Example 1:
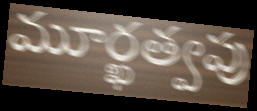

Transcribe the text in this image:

మూర్ఖత్వపు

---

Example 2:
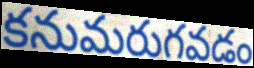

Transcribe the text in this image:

కనుమరుగవడం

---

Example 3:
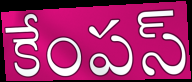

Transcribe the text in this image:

కేంపస్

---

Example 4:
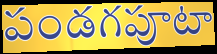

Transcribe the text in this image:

పండగపూటా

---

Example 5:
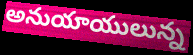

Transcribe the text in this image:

అనుయాయులున్న